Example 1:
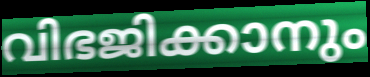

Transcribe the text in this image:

വിഭജിക്കാനും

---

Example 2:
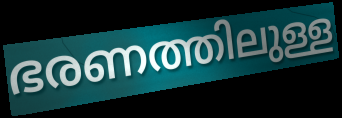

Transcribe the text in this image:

ഭരണത്തിലുള്ള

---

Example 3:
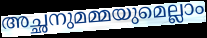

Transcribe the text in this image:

അച്ഛനുമമ്മയുമെല്ലാം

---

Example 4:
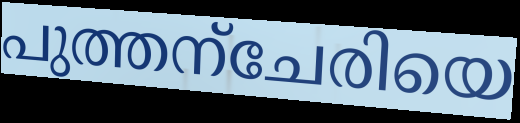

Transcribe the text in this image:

പുത്തന്ചേരിയെ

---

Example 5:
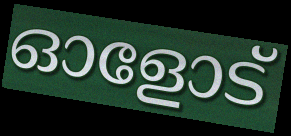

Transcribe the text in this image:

ഓളോട്